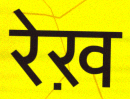
रेख़